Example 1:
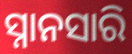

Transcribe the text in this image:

ସ୍ନାନସାରି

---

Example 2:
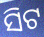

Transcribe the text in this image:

ସିଟ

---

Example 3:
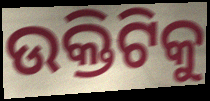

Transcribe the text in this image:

ଉକ୍ତିଟିକୁ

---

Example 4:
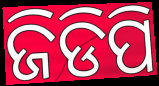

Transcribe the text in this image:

ଜିଡିପି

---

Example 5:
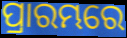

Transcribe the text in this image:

ପ୍ରାରମ୍ଭରେ